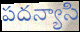
పదన్యాసి